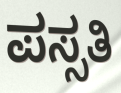
ಪಸ್ಸತಿ